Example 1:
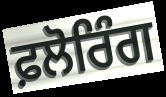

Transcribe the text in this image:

ਫ਼ਲੋਰਿੰਗ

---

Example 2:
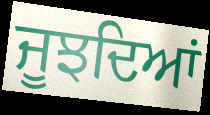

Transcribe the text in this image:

ਜੂਝਦਿਆਂ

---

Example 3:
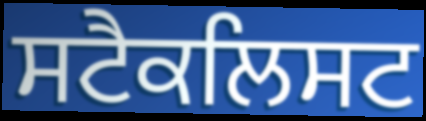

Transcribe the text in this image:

ਸਟੈਕਲਿਸਟ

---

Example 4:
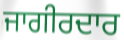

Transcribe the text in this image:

ਜਾਗੀਰਦਾਰ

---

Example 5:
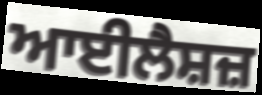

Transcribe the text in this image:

ਆਈਲੈਸ਼ਜ਼